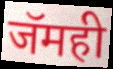
जॅमही